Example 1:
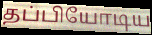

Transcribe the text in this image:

தப்பியோடிய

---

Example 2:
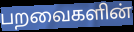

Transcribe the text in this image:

பறவைகளின்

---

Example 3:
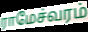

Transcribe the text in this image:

ராமேச்வரம்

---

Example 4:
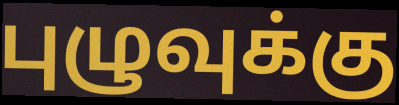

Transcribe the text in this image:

புழுவுக்கு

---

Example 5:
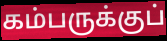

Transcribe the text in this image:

கம்பருக்குப்